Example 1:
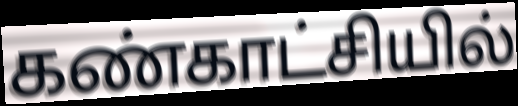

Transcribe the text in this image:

கண்காட்சியில்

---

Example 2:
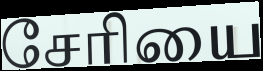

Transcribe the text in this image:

சேரியை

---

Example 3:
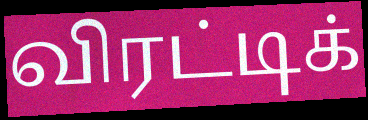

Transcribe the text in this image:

விரட்டிக்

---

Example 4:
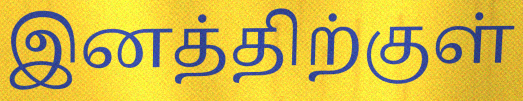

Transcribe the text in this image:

இனத்திற்குள்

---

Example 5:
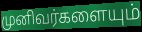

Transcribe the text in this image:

முனிவர்களையும்